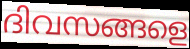
ദിവസങ്ങളെ